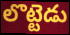
లొట్టెడు